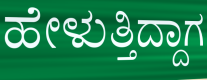
ಹೇಳುತ್ತಿದ್ದಾಗ